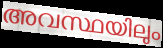
അവസ്ഥയിലും